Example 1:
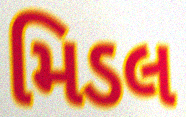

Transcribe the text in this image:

મિડલ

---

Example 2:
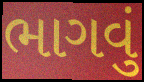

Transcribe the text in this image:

ભાગવું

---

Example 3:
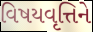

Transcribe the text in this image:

વિષયવૃત્તિને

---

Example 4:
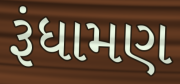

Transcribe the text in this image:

રૂંધામણ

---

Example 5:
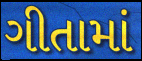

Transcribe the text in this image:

ગીતામાં